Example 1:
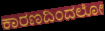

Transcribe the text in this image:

ಕಾರಣದಿಂದಲೋ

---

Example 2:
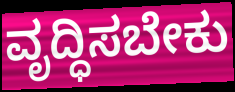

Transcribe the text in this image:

ವೃದ್ಧಿಸಬೇಕು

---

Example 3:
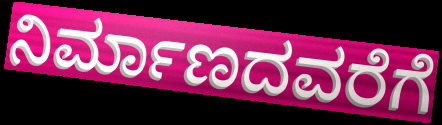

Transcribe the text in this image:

ನಿರ್ಮಾಣದವರೆಗೆ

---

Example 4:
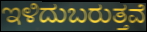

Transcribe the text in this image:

ಇಳಿದುಬರುತ್ತವೆ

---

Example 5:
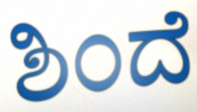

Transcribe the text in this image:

ಶಿಂದೆ